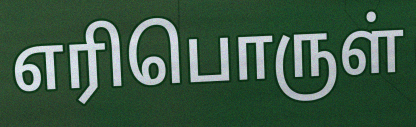
எரிபொருள்